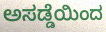
ಅಸಡ್ಡೆಯಿಂದ